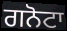
ਗਨੋਟਾ